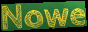
Nowe